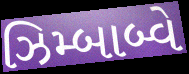
ઝિમ્બાબ્વે